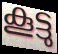
കൂട്ടു